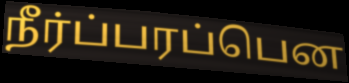
நீர்ப்பரப்பென